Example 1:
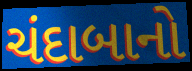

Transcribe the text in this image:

ચંદાબાનો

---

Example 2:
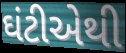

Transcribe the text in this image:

ઘંટીએથી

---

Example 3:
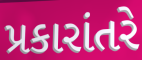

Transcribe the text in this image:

પ્રકારાંતરે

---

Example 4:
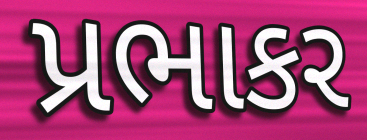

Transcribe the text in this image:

પ્રભાકર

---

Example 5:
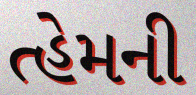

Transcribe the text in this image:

ત્હેમની